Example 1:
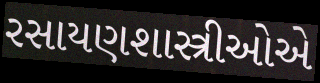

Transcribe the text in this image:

રસાયણશાસ્ત્રીઓએ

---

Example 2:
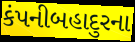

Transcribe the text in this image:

કંપનીબહાદુરના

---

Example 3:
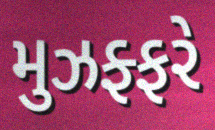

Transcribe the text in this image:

મુઝફ્ફરે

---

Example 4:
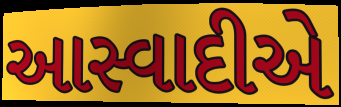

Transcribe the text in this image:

આસ્વાદીએ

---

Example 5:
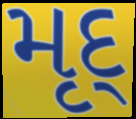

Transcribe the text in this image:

મૃદ્